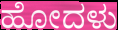
ಹೋದಳು